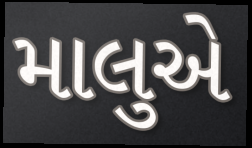
માલુએ